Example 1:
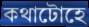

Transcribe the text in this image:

কথাটোহে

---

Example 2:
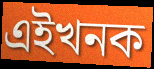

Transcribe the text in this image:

এইখনক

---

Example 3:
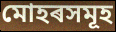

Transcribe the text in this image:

মোহৰসমূহ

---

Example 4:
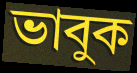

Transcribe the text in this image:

ভাবুক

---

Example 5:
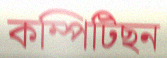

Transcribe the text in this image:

কম্পিটিছন